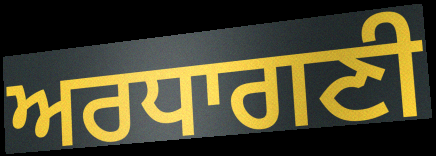
ਅਰਧਾਗਣੀ